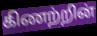
கிணற்றின்